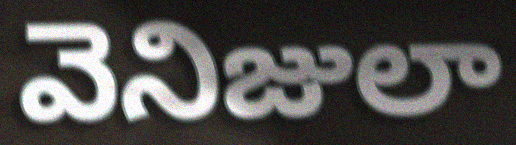
వెనిజులా